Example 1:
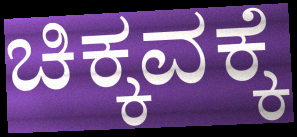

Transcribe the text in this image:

ಚಿಕ್ಕವಕ್ಕೆ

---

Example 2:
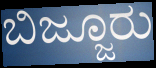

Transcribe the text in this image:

ಬಿಜ್ಜೂರು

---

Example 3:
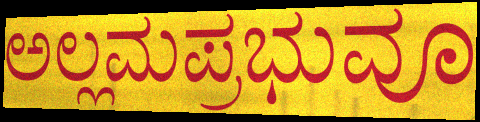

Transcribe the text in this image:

ಅಲ್ಲಮಪ್ರಭುವೂ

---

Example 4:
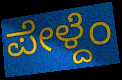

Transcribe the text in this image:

ಪೇಳ್ದೆಂ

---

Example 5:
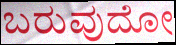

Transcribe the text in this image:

ಬರುವುದೋ